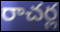
రాచర్ల